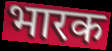
भारक